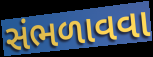
સંભળાવવા